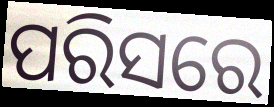
ପରିସରେ